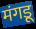
मंगडू